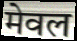
मेवल